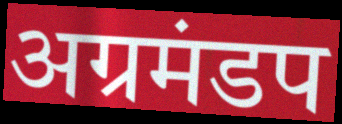
अग्रमंडप